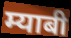
म्याबी